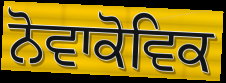
ਨੋਵਾਕੋਵਿਕ